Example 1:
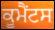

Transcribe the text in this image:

ਕੂਮੈਂਟਸ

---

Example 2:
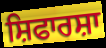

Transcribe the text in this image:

ਸ਼ਿਫਾਰਸ਼ਾ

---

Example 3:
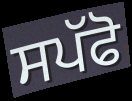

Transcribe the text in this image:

ਸਪੱਫੋ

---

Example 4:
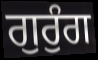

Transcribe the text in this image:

ਗੁਰੁੰਗ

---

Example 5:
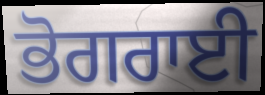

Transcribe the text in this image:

ਭੋਗਰਾਈ